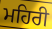
ਮਹਿਰੀ